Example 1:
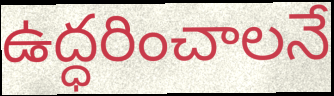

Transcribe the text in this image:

ఉద్ధరించాలనే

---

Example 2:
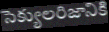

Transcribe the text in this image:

సెక్యులరిజానికి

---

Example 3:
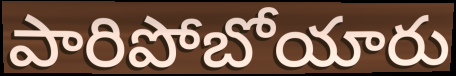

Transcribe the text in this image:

పారిపోబోయారు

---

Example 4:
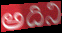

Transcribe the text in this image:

అదిని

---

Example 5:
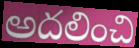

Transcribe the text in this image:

అదలించి